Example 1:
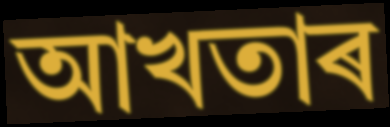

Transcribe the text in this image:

আখতাৰ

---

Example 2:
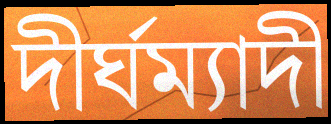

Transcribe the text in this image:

দীৰ্ঘম্যাদী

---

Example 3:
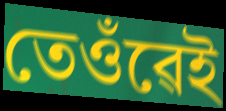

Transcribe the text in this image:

তেওঁৱেই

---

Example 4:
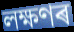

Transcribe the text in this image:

লক্ষণৰ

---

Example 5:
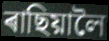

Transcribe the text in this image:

ৰাছিয়ালৈ